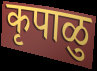
कृपाळु